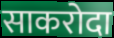
साकरोदा